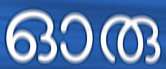
ഓരു